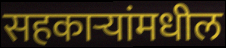
सहकाऱ्यांमधील